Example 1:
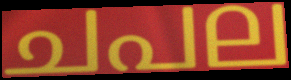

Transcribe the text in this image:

ചപല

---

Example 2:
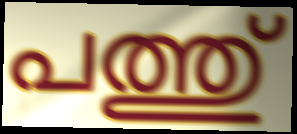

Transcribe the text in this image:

പത്തു്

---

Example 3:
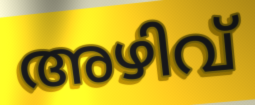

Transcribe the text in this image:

അഴിവ്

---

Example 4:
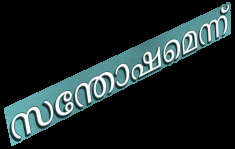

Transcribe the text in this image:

സന്തോഷമെന്ന്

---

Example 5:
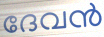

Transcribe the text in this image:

ദേവൻ